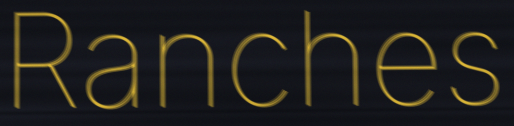
Ranches